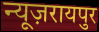
न्यूज़रायपुर